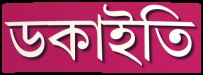
ডকাইতি